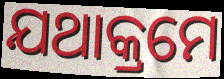
ଯଥାକ୍ରମେ